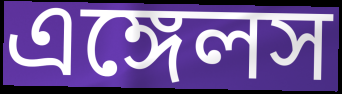
এঙ্গেলস